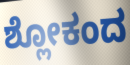
ಶ್ಲೋಕಂದ